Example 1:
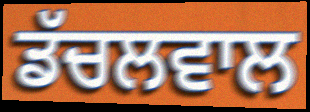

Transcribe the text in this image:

ਡੱਚਲਵਾਲ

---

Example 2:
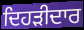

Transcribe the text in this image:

ਦਿਹੜੀਦਾਰ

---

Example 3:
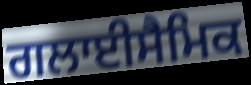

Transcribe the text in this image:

ਗਲਾਈਸੈਮਿਕ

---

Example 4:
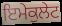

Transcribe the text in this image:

ਇਮੇਕੁਲੇਟ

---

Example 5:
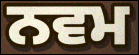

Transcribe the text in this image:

ਨਵਮ